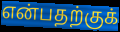
என்பதற்குக்